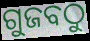
ଗୁଜବଠୁ